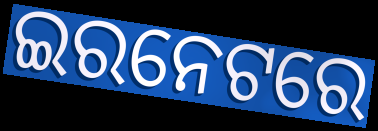
ଇରନେଟରେ